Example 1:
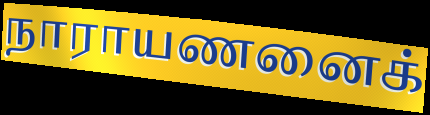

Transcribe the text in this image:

நாராயணனைக்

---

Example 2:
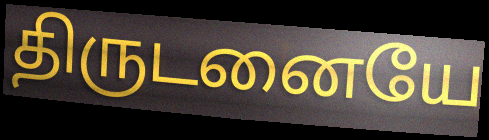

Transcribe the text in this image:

திருடனையே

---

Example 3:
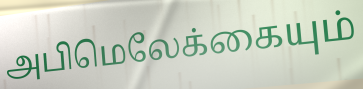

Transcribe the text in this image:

அபிமெலேக்கையும்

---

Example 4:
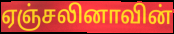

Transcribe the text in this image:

ஏஞ்சலினாவின்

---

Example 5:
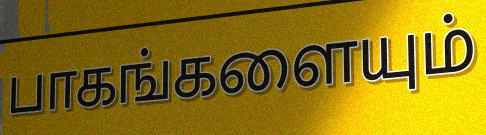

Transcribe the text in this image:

பாகங்களையும்